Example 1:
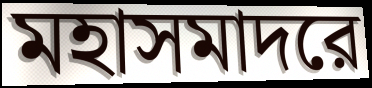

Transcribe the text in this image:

মহাসমাদরে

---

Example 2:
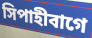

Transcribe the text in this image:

সিপাহীবাগে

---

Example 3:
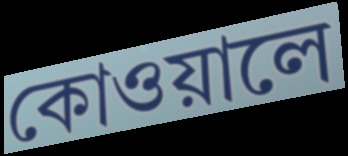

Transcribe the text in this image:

কোওয়ালে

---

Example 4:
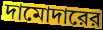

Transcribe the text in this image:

দামোদারের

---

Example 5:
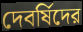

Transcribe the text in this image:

দেবর্ষিদের